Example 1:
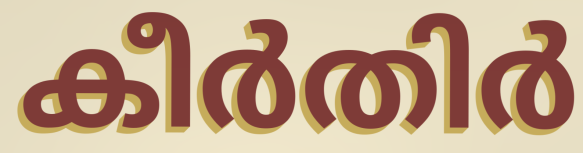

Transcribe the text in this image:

കീർതിർ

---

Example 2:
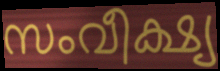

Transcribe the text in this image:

സംവീക്ഷ്യ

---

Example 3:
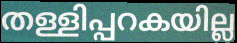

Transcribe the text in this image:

തള്ളിപ്പറകയില്ല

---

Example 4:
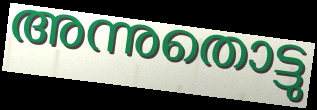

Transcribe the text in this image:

അന്നുതൊട്ടു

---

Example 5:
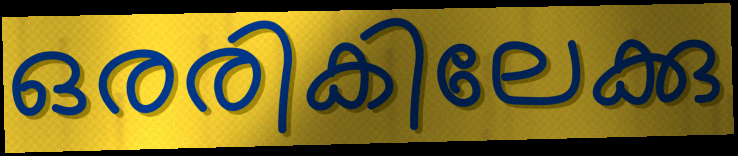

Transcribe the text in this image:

ഒരരികിലേക്കു